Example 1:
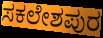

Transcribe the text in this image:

ಸಕಲೇಶಪುರ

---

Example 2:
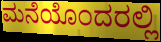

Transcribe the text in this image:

ಮನೆಯೊಂದರಲ್ಲಿ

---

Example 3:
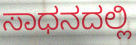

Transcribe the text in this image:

ಸಾಧನದಲ್ಲಿ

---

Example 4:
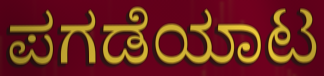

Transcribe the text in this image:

ಪಗಡೆಯಾಟ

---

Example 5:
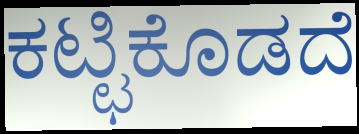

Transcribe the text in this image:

ಕಟ್ಟಿಕೊಡದೆ